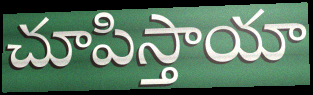
చూపిస్తాయా